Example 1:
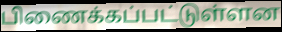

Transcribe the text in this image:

பிணைக்கப்பட்டுள்ளன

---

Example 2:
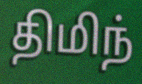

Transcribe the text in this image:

திமிந்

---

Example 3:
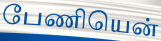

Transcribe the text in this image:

பேணியென்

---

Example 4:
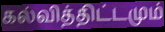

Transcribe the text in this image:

கல்வித்திட்டமும்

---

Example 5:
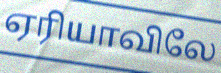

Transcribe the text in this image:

ஏரியாவிலே